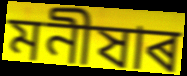
মনীষাৰ